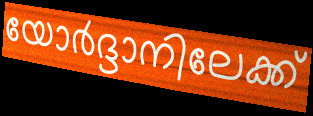
യോർദ്ദാനിലേക്ക്